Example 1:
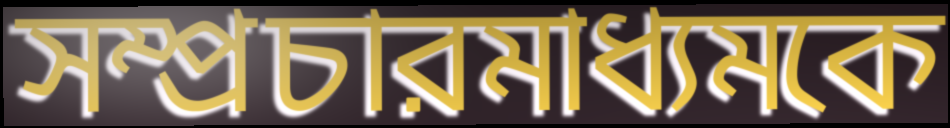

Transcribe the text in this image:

সম্প্রচারমাধ্যমকে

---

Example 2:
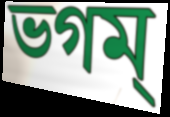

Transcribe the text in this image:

ভগম্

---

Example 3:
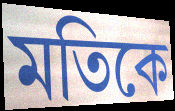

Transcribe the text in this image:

মতিকে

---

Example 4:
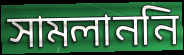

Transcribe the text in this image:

সামলাননি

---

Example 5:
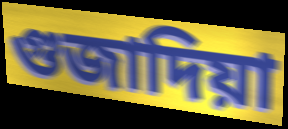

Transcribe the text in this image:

গুজাদিয়া